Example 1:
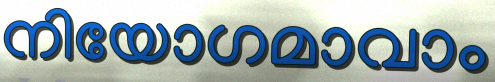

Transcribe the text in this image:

നിയോഗമാവാം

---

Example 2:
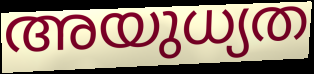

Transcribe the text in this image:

അയുധ്യത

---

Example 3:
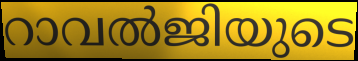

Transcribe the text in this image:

റാവൽജിയുടെ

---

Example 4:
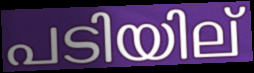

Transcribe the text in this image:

പടിയില്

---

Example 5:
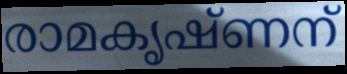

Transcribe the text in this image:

രാമകൃഷ്ണന്